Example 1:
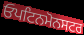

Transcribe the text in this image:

ਓਪਟਿਨਮੋਨਸਟਰ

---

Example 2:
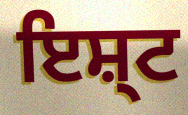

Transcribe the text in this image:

ਇਸ਼੍ਟ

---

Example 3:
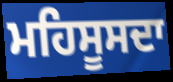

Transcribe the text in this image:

ਮਹਿਸੂਸਦਾ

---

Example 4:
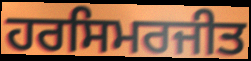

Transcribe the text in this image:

ਹਰਸਿਮਰਜੀਤ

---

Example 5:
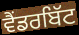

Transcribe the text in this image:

ਵੈਂਡਰਬਿੱਟ